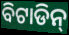
ବିଟାଡିନ୍